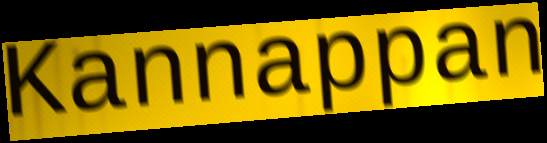
Kannappan